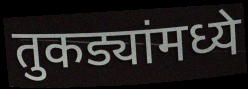
तुकड्यांमध्ये